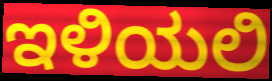
ಇಳಿಯಲಿ